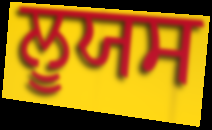
ਲੂਯਸ